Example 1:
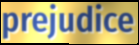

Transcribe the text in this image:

prejudice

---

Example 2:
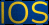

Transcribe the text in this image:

IOS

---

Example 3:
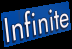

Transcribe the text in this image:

Infinite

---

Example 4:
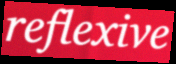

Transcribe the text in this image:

reflexive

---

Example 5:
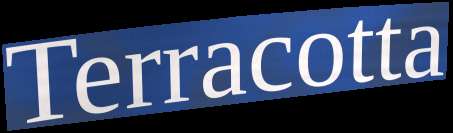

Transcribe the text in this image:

Terracotta